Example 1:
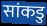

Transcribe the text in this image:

सांकडु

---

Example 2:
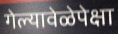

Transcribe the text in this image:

गेल्यावेळेपेक्षा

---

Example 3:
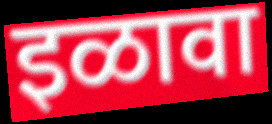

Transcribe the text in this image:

इळावा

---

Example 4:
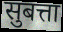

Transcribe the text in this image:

सुबत्ता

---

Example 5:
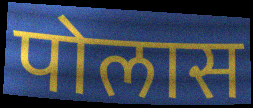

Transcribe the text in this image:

पोलास